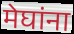
मेघांना